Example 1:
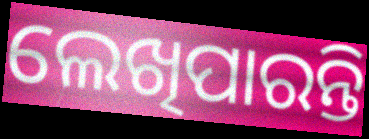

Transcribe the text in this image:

ଲେଖିପାରନ୍ତି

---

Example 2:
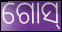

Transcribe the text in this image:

ଗୋସ୍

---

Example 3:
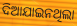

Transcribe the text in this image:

ଦିଆଯାଇନଥିଲା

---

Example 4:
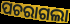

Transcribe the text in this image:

ପଚରାଗଲା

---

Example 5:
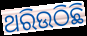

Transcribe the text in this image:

ଥରିଉଠିଛି